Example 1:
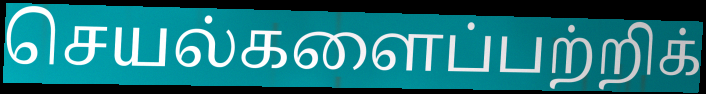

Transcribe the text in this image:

செயல்களைப்பற்றிக்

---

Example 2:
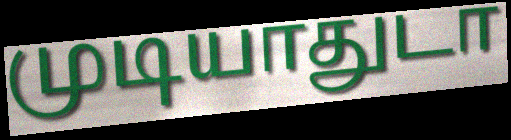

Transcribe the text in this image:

முடியாதுடா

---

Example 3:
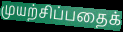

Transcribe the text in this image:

முயற்சிப்பதைக்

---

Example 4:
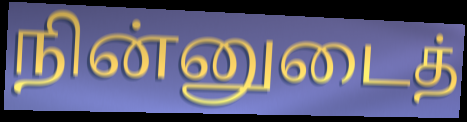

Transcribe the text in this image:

நின்னுடைத்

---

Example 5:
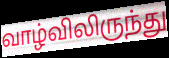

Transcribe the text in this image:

வாழ்விலிருந்து